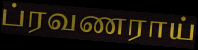
ப்ரவணராய்